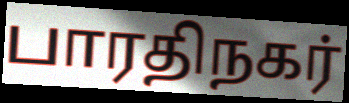
பாரதிநகர்